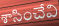
శాసించేవి